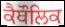
ਕੈਥੌਲਿਕ